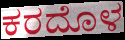
ಕರದೊಳ